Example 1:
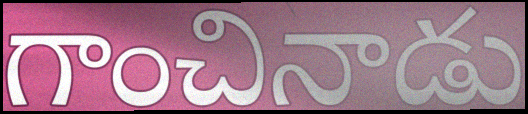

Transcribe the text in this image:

గాంచినాడు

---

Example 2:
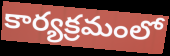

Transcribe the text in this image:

కార్యక్రమంలో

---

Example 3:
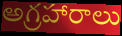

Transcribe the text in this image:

అగ్రహారాలు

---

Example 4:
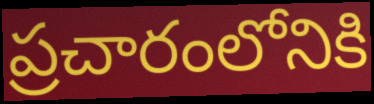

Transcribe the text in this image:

ప్రచారంలోనికి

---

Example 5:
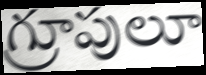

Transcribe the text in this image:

గ్రూపులూ